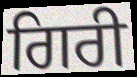
ਗਿਰੀ